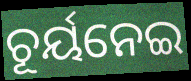
ଚୂର୍ୟନେଇ